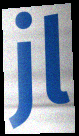
jl